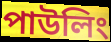
পাউলিং